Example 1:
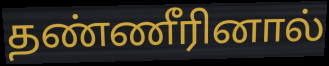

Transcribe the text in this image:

தண்ணீரினால்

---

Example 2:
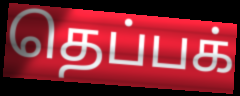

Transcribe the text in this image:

தெப்பக்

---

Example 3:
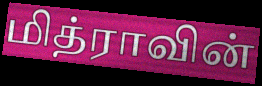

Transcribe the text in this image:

மித்ராவின்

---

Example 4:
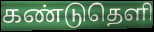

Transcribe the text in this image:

கண்டுதெளி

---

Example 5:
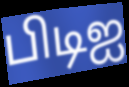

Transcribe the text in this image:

பிடிஐ